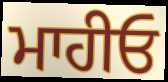
ਮਾਹੀਓ